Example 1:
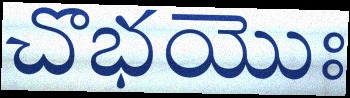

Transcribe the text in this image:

చొభయొః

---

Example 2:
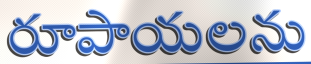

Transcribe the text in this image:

రూపాయలను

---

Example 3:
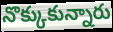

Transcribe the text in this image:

నొక్కుకున్నారు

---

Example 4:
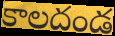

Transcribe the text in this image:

కాలదండ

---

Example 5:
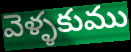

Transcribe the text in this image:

వెళ్ళకుము